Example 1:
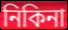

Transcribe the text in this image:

নিকিনা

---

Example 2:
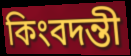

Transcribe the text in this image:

কিংবদন্তী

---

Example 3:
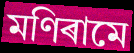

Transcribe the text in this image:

মণিৰামে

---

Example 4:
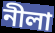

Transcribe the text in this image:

নীলা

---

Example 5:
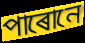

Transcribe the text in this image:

পাৰোনে